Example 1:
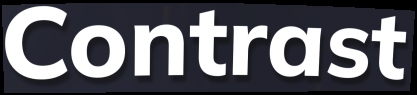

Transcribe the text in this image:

Contrast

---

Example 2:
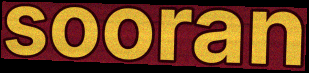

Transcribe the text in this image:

sooran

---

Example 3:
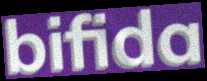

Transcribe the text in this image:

bifida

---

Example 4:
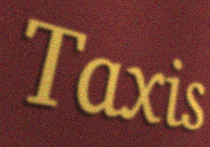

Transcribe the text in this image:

Taxis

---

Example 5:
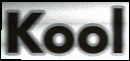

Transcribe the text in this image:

Kool